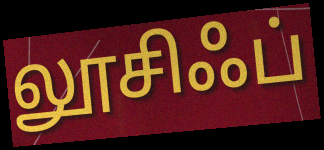
லூசிஃப்